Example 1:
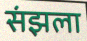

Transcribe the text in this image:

संझला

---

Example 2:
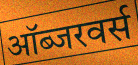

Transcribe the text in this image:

ऑब्जरवर्स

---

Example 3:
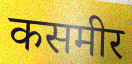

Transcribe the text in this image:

कसमीर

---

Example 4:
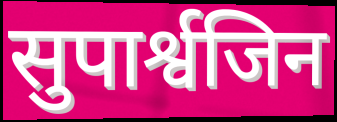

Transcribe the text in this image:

सुपार्श्वजिन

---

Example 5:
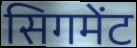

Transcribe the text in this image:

सिगमेंट